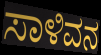
ಸಾಳಿವನ